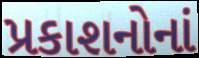
પ્રકાશનોનાં